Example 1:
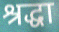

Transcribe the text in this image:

श्रद्धा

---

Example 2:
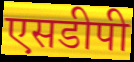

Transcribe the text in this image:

एसडीपी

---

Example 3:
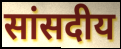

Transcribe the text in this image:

सांसदीय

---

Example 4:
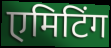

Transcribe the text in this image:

एमिटिंग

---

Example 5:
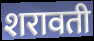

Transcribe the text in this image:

शरावती